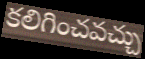
కలిగించవచ్చు